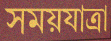
সময়যাত্রা